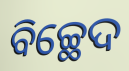
ବିଚ୍ଛେଦ